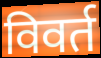
विवर्त